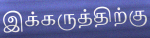
இக்கருத்திற்கு